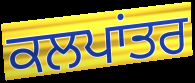
ਕਲਪਾਂਤਰ